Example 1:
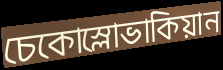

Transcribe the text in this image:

চেকোস্লোভাকিয়ান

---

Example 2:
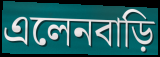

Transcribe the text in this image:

এলেনবাড়ি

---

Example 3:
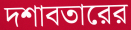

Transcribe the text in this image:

দশাবতারের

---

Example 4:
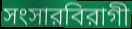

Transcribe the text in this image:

সংসারবিরাগী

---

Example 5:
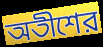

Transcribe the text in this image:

অতীশের